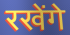
रखेंगे